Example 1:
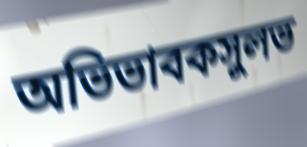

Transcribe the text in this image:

অভিভাবকসুলভ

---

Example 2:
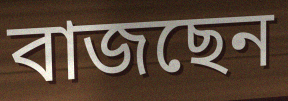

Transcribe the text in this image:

বাজছেন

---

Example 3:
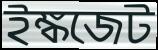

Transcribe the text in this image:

ইঙ্কজেট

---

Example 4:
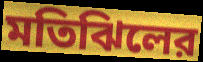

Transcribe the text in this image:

মতিঝিলের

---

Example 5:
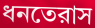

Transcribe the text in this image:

ধনতেরাস